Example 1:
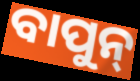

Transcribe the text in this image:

ବାପୁନ୍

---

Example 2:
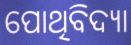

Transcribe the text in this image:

ପୋଥିବିଦ୍ୟା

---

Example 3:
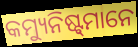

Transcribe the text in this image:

କମ୍ୟୁନିଷ୍ଟ୍‌ମାନେ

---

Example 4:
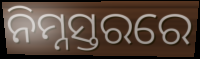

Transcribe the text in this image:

ନିମ୍ନସ୍ତରରେ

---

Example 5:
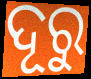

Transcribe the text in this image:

ଦୂରୁ